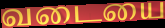
வடையை